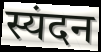
स्यंदन